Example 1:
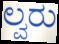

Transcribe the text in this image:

ಲ್ವರು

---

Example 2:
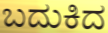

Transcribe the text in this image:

ಬದುಕಿದ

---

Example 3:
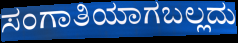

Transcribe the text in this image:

ಸಂಗಾತಿಯಾಗಬಲ್ಲದು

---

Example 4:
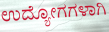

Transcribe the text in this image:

ಉದ್ಯೋಗಗಳಾಗಿ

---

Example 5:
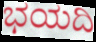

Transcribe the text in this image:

ಭಯದಿ